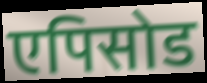
एपिसोड